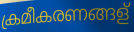
ക്രമീകരണങ്ങള്